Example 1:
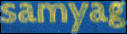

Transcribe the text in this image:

samyag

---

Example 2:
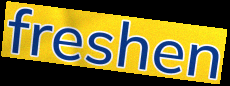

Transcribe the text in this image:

freshen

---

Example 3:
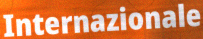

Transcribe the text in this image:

Internazionale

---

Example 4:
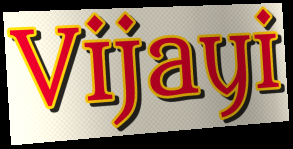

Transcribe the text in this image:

Vijayi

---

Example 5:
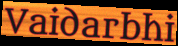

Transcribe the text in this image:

Vaidarbhi